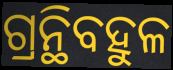
ଗ୍ରନ୍ଥିବହୁଳ